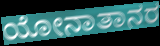
ಯೋನಾತಾನರ